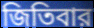
জিতিবার